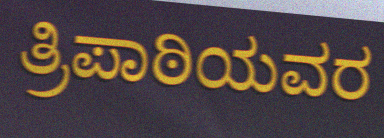
ತ್ರಿಪಾಠಿಯವರ